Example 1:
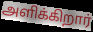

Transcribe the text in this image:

அளிக்கிறார்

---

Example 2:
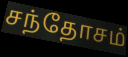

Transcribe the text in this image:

சந்தோசம்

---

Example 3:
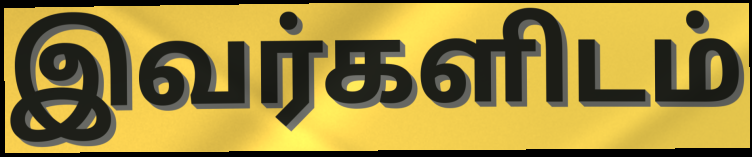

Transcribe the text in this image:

இவர்களிடம்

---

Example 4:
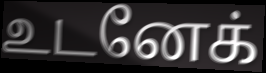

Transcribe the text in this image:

உடனேக்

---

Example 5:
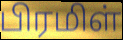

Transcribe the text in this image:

பிரமிள்